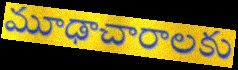
మూఢాచారాలకు